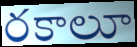
రకాలూ